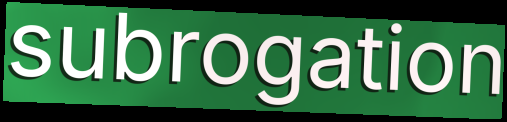
subrogation